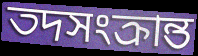
তদসংক্রান্ত